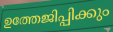
ഉത്തേജിപ്പിക്കും